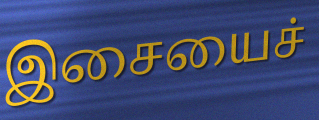
இசையைச்